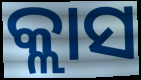
କ୍ଲାସ